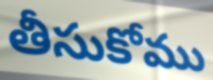
తీసుకోము